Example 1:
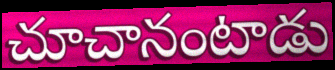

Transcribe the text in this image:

చూచానంటాడు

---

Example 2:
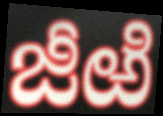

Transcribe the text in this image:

జీఱి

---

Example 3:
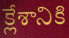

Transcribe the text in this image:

క్లేశానికి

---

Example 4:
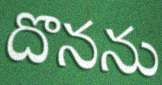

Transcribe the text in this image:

దొనను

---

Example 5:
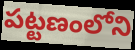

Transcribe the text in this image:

పట్టణంలోని